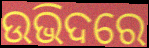
ଉଭିଦରେ